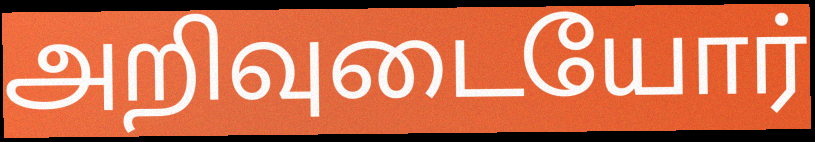
அறிவுடையோர்